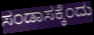
ಸಂಡಾಸಕ್ಕೆಂದು